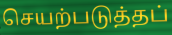
செயற்படுத்தப்